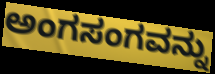
ಅಂಗಸಂಗವನ್ನು